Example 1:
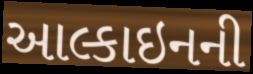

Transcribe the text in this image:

આલ્કાઇનની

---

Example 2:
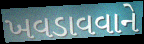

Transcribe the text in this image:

ખવડાવવાને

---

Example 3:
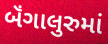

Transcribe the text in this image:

બૅંગાલુરુમાં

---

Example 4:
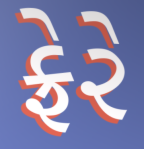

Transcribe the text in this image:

ફ્રેરે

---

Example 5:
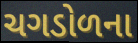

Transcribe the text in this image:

ચગડોળના